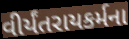
વીર્યંતરાયકર્મના